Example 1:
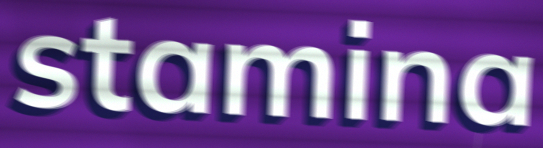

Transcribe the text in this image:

stamina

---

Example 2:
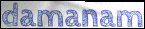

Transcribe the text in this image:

damanam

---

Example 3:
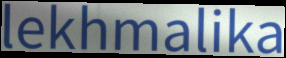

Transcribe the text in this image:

lekhmalika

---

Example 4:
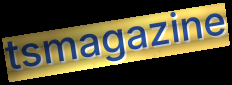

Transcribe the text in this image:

tsmagazine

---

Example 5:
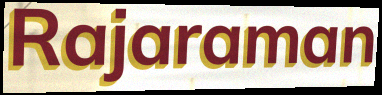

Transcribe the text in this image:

Rajaraman